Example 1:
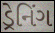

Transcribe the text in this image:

ડ્રેનિંગ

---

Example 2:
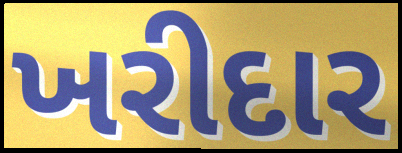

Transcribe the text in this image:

ખરીદાર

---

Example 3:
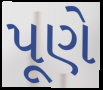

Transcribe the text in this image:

પૂણે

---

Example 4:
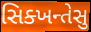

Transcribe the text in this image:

સિક્ખન્તેસુ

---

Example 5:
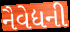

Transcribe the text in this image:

નૈવેદ્યની